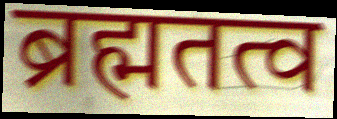
ब्रह्मतत्व